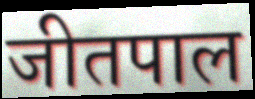
जीतपाल